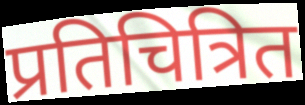
प्रतिचित्रित